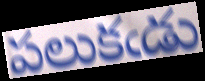
పలుకఁడు